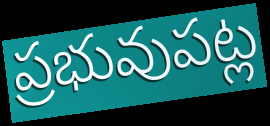
ప్రభువుపట్ల